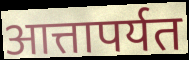
आत्तापर्यत